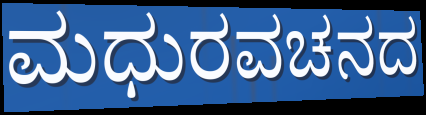
ಮಧುರವಚನದ